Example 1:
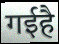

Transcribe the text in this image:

गईहै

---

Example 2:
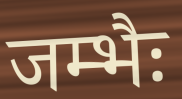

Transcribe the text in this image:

जम्भैः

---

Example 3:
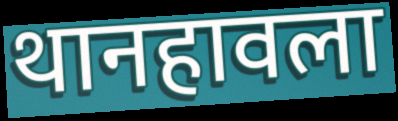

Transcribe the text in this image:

थानहावला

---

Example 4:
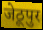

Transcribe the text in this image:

जेठूपुर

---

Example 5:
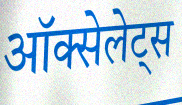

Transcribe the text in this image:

ऑक्सेलेट्स